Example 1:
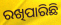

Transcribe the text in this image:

ରଖିପାରିଛି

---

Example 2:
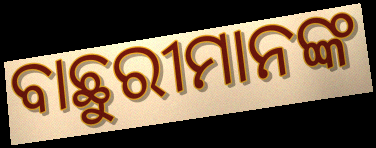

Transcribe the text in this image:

ବାଛୁରୀମାନଙ୍କ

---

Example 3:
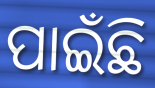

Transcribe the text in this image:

ପାଇଁଛି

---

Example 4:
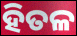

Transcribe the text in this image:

ହିତଳ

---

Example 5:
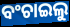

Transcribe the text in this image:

ବଂଚାଇଲୁ